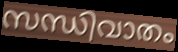
സന്ധിവാതം